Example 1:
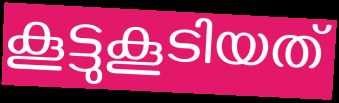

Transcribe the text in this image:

കൂട്ടുകൂടിയത്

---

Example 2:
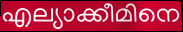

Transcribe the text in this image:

എല്യാക്കീമിനെ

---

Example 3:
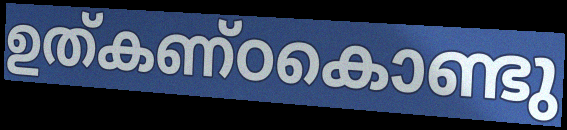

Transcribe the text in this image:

ഉത്കണ്ഠകൊണ്ടു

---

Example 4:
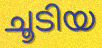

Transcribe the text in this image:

ചൂടിയ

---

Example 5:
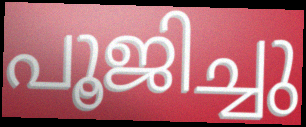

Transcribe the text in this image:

പൂജിച്ചു